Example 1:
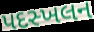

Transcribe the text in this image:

પદસ્ખલન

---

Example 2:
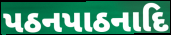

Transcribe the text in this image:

પઠનપાઠનાદિ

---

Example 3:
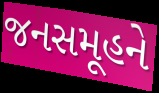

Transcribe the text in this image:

જનસમૂહને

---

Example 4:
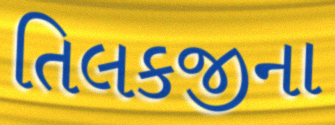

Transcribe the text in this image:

તિલકજીના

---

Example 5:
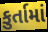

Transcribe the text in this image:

કુર્તામાં